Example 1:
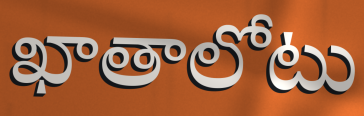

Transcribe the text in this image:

ఖాతాలోటు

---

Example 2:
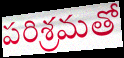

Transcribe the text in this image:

పరిశ్రమతో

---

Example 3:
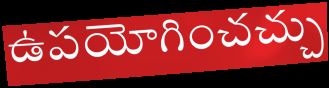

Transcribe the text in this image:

ఉపయోగించచ్చు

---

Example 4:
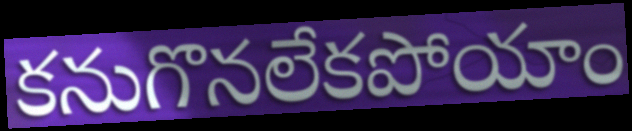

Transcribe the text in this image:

కనుగొనలేకపోయాం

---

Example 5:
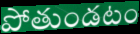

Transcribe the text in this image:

పోతుండటం